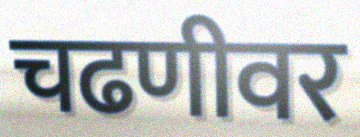
चढणीवर